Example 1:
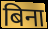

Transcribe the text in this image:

बिना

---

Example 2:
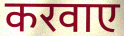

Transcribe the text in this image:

करवाए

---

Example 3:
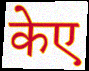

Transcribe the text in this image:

केए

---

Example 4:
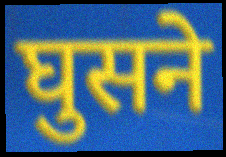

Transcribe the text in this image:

घुसने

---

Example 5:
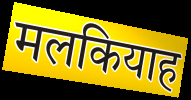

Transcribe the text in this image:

मलकियाह